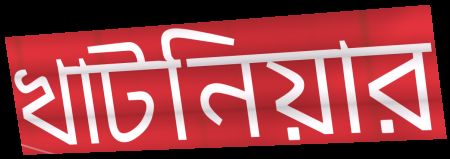
খাটনিয়ার